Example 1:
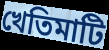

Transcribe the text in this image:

খেতিমাটি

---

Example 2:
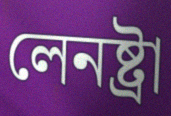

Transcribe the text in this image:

লেনষ্ট্ৰা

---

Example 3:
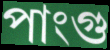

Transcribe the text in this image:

পাংগু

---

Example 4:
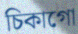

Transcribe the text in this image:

চিকাগো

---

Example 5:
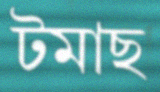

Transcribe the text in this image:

টমাছ